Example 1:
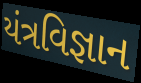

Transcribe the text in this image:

યંત્રવિજ્ઞાન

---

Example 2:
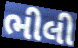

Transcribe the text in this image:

ભીલી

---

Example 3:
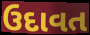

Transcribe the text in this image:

ઉદાવત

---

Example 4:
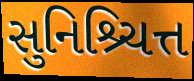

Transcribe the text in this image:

સુનિશ્ર્ચિત્ત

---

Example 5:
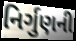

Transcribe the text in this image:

નિર્ગુણની